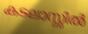
കടലാസ്സിൽ